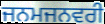
ਜਨਮਜਨਵਰੀ